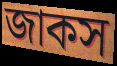
জাকস